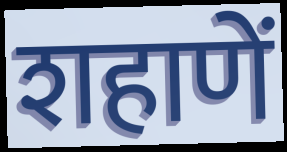
शहाणें